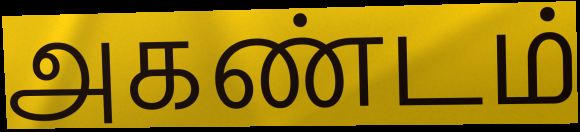
அகண்டம்